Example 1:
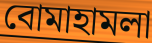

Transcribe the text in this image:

বোমাহামলা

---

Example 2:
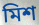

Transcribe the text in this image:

মিশ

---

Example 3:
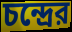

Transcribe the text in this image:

চন্দ্রের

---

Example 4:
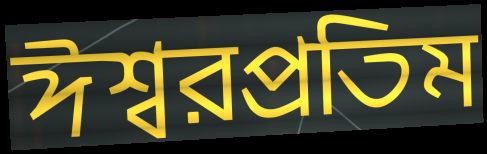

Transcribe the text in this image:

ঈশ্বরপ্রতিম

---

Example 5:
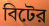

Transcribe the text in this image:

বিটের